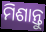
ମିଶାନ୍ତୁ